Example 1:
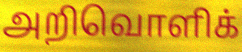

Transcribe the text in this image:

அறிவொளிக்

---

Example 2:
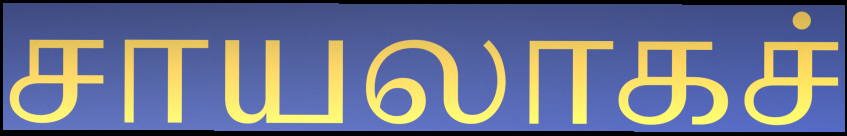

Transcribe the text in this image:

சாயலாகச்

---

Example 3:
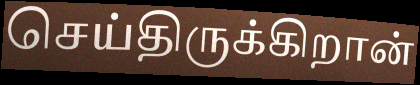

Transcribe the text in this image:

செய்திருக்கிறான்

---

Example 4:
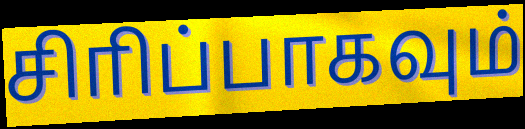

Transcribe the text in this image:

சிரிப்பாகவும்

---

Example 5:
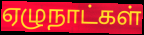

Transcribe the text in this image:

ஏழுநாட்கள்